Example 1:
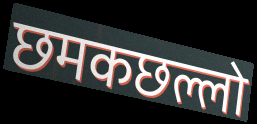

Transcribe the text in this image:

छमकछल्लो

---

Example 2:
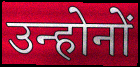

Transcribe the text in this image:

उन्होनों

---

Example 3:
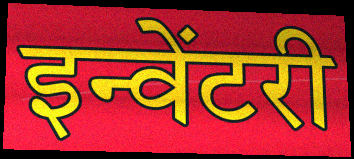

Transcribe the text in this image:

इन्वेंटरी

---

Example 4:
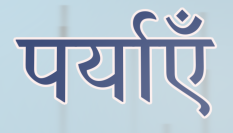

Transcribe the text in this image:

पर्याएँ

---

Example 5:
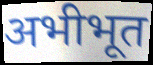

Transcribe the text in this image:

अभीभूत